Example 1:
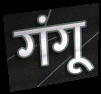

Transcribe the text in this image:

गंगू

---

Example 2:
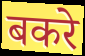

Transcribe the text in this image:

बकरे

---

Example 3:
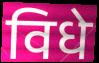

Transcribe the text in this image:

विधे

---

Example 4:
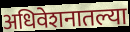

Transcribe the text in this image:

अधिवेशनातल्या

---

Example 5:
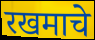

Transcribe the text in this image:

रखमाचे